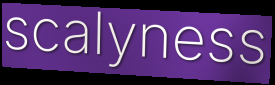
scalyness